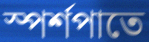
স্পর্শপাতে